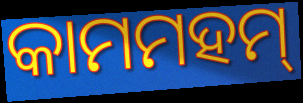
କାମମହମ୍